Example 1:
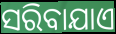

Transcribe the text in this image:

ସରିବାଯାଏ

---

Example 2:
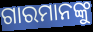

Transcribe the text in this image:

ଗାରମାନଙ୍କୁ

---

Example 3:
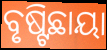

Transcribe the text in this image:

ବୃଷ୍ଟିଛାୟା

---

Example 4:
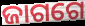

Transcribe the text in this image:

ଜାଗଗେ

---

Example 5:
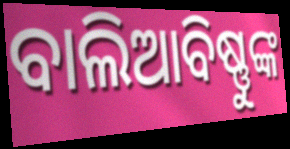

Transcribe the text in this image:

ବାଲିଆବିଷ୍ଣୁଙ୍କ